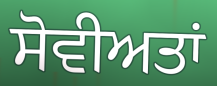
ਸੋਵੀਅਤਾਂ